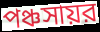
পঞ্চসায়র